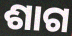
ଶାଗ